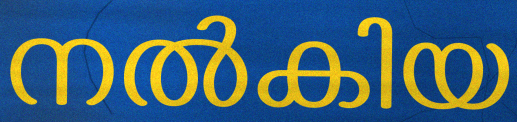
നൽകിയ